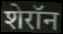
शेरॉन